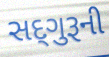
સદ્‌ગુરૂની